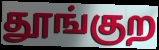
தூங்குற